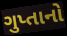
ગુપ્તાનો